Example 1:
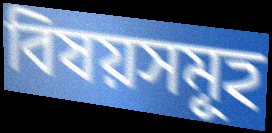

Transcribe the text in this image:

বিষয়সমূহ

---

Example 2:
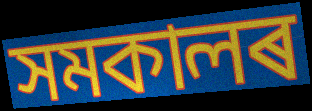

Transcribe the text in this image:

সমকালৰ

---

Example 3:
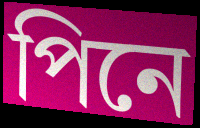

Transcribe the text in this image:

পিনে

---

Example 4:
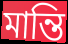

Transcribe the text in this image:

মান্তি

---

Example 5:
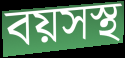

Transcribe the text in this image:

বয়সস্থ